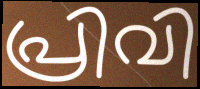
പ്രിവി